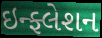
ઇન્ફ્લેશન